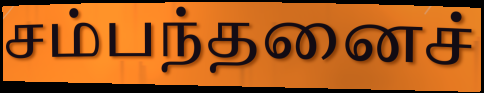
சம்பந்தனைச்